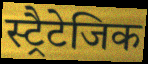
स्ट्रैटेजिक